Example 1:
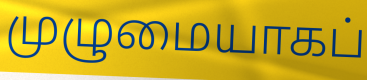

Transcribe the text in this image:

முழுமையாகப்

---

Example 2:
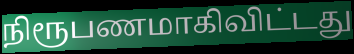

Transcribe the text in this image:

நிரூபணமாகிவிட்டது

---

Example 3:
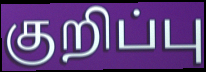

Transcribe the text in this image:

குறிப்பு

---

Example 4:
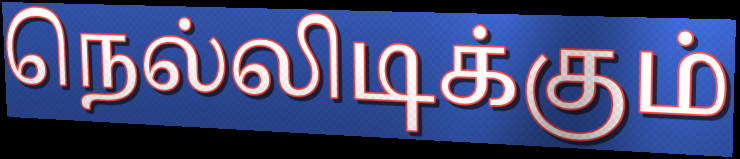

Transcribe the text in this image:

நெல்லிடிக்கும்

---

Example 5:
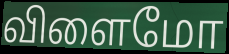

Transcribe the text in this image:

விளைமோ